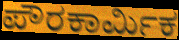
ಪೌರಕಾರ್ಮಿಕ